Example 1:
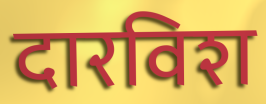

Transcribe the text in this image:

दारविश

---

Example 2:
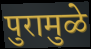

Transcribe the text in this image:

पुरामुळे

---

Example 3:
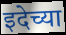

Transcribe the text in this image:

इदेच्या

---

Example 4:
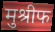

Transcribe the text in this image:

मुश्रीफ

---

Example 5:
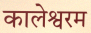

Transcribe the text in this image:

कालेश्वरम